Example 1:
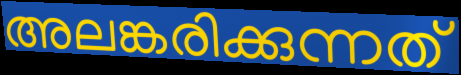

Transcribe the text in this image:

അലങ്കരിക്കുന്നത്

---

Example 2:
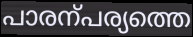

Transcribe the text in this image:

പാരന്പര്യത്തെ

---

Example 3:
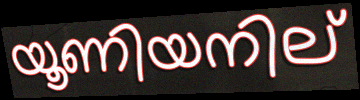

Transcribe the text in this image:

യൂണിയനില്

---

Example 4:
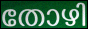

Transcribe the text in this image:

തോഴി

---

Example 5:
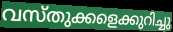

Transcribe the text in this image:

വസ്തുക്കളെക്കുറിച്ചു